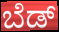
ಬೆಡ್